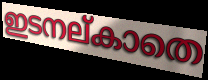
ഇടനല്കാതെ